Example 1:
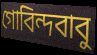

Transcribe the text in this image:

গোবিন্দবাবু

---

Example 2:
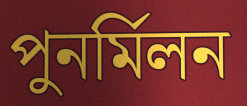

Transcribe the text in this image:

পুনর্মিলন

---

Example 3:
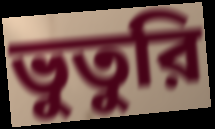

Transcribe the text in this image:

ভুতুরি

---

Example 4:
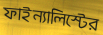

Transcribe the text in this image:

ফাইন্যালিস্টের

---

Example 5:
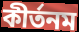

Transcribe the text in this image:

কীর্তনম